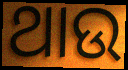
ଥାଉ